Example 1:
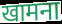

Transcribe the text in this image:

खामना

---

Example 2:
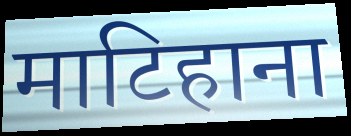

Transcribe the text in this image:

माटिहाना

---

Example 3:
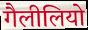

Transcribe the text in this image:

गैलीलियो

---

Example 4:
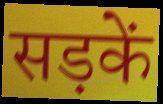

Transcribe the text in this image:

सड़कें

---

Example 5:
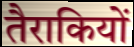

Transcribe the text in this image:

तैराकियों